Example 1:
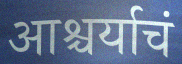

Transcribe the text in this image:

आश्चर्याचं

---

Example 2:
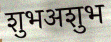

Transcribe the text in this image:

शुभअशुभ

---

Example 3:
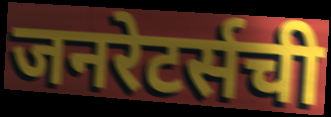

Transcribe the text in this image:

जनरेटर्सची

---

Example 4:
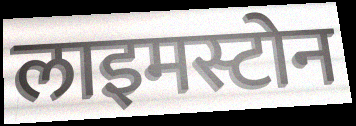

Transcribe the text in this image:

लाइमस्टोन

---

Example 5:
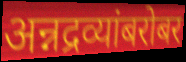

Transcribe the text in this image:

अन्नद्रव्यांबरोबर